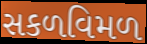
સકળવિમળ